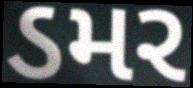
ડમર